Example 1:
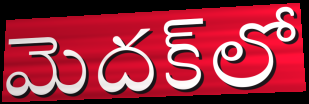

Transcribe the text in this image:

మెదక్‌లో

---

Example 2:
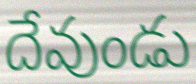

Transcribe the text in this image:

దేవుండు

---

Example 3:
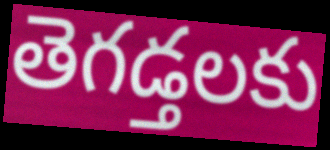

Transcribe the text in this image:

తెగడ్తలకు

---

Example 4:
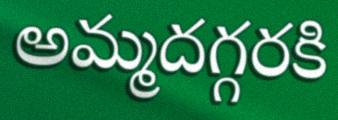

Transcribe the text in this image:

అమ్మదగ్గరకి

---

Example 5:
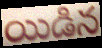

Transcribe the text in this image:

యిడిన